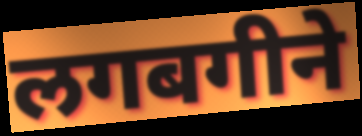
लगबगीने